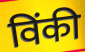
विंकी